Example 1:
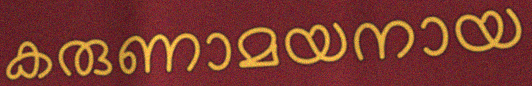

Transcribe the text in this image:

കരുണാമയനായ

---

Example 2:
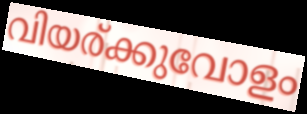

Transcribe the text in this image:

വിയര്ക്കുവോളം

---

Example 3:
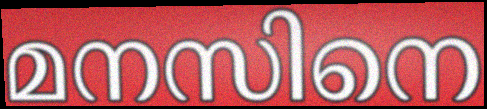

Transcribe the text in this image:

മനസിനെ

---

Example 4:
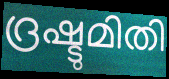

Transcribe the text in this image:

ദ്രഷ്ടുമിതി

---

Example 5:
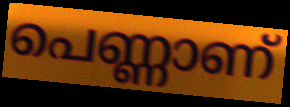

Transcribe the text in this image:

പെണ്ണാണ്